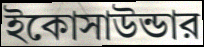
ইকোসাউন্ডার